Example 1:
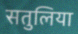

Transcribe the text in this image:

सतुलिया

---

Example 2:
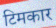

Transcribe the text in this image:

टिमकार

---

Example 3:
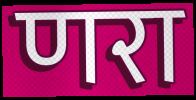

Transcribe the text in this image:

णरा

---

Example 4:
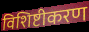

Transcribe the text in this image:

विशिष्टीकरण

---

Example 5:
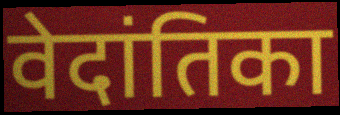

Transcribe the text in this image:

वेदांतिका